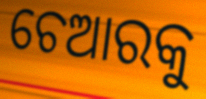
ଚେଆରକୁ